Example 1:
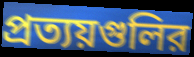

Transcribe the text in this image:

প্রত্যয়গুলির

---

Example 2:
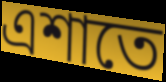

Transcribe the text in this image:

এশাতে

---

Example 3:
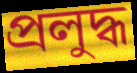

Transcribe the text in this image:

প্রলুদ্ধ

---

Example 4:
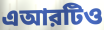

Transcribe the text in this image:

এআরটিও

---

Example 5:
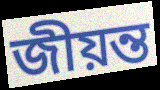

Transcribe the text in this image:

জীয়ন্ত